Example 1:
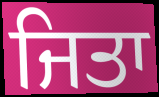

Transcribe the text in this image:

ਜਿਤਾ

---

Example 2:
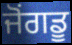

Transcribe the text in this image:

ਜੋਂਗਡੂ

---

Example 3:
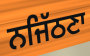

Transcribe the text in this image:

ਨਜਿੱਠਣਾ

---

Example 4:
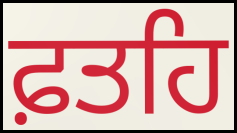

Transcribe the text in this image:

ਫ਼ਤਹਿ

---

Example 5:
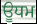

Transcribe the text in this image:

ਊਧਮ